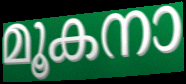
മൂകനാ